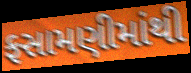
ફસામણીમાંથી